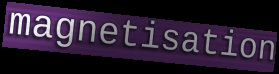
magnetisation